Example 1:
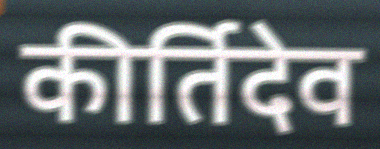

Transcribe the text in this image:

कीर्तिदेव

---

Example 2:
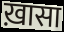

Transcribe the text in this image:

ख़ासा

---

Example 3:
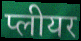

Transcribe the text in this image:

प्लीयर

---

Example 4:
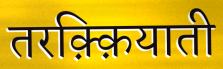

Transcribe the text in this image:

तरक़्क़ियाती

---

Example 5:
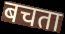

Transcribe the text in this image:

बचता